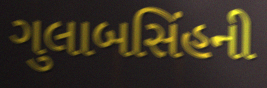
ગુલાબસિંહની